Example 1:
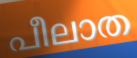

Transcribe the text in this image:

പീലാത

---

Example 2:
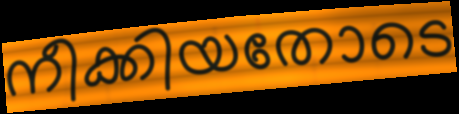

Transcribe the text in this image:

നീക്കിയതോടെ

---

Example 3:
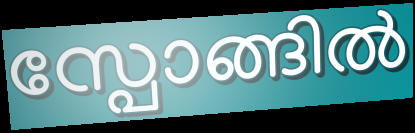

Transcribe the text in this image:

സ്പോങ്ങിൽ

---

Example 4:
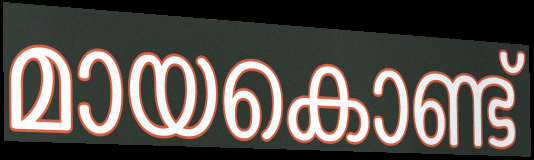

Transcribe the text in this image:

മായകൊണ്ട്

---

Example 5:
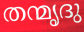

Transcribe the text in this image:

തന്മൃദു